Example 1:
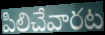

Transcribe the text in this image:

పిలిచేవారట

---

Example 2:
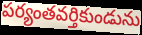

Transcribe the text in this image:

పర్యంతవర్తికుండును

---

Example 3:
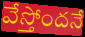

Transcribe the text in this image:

వేస్తోందనే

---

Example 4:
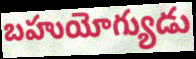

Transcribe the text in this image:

బహుయోగ్యుడు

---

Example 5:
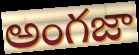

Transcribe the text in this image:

అంగజా